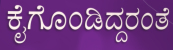
ಕೈಗೊಂಡಿದ್ದರಂತೆ